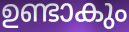
ഉണ്ടാകും